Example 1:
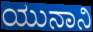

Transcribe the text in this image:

ಯುನಾನಿ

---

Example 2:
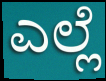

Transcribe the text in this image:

ಎಲ್ಲೆ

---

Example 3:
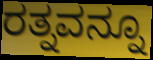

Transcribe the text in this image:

ರತ್ನವನ್ನೂ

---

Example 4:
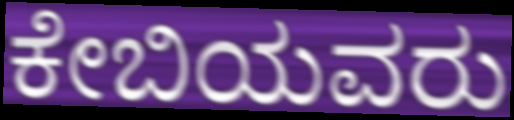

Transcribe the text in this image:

ಕೇಬಿಯವರು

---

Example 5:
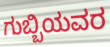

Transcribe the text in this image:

ಗುಬ್ಬಿಯವರ